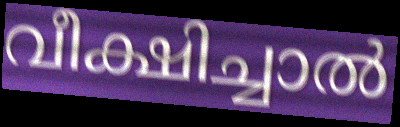
വീക്ഷിച്ചാൽ